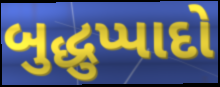
બુદ્ધુપ્પાદો